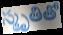
స్మృతితో